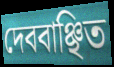
দেববাঞ্ছিত